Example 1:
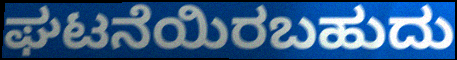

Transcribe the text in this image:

ಘಟನೆಯಿರಬಹುದು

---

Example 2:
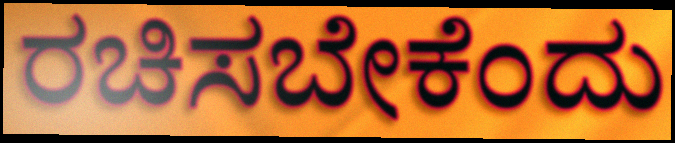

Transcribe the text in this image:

ರಚಿಸಬೇಕೆಂದು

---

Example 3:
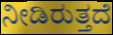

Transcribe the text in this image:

ನೀಡಿರುತ್ತದೆ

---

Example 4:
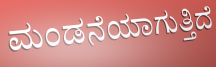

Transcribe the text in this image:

ಮಂಡನೆಯಾಗುತ್ತಿದೆ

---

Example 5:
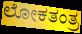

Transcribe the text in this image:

ಲೋಕತಂತ್ರ